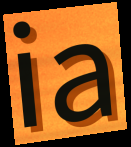
ia